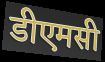
डीएमसी